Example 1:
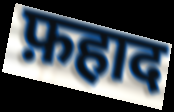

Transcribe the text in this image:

फ़हाद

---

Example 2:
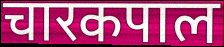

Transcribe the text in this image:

चारकपाल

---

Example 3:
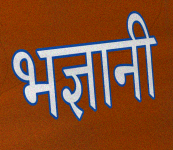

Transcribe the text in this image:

भज्ञानी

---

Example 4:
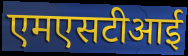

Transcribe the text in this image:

एमएसटीआई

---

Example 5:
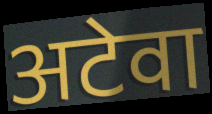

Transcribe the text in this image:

अटेवा